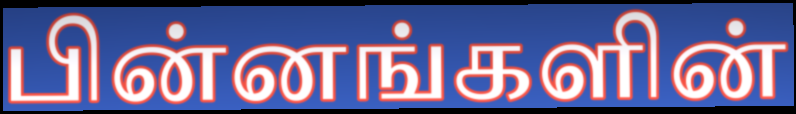
பின்னங்களின்